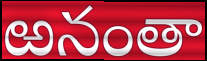
ఱనంతా